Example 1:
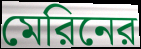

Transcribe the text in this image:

মেরিনের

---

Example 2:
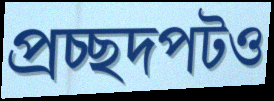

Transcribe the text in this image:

প্রচ্ছদপটও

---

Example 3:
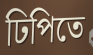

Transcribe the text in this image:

ঢিপিতে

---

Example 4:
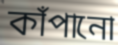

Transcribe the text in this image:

কাঁপানো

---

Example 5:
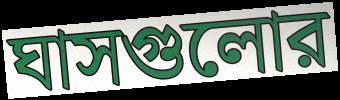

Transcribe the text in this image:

ঘাসগুলোর